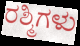
ರಶ್ಮಿಗಳು